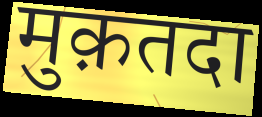
मुक़तदा